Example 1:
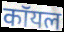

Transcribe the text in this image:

कॉयल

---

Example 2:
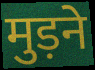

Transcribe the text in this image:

मुड़ने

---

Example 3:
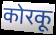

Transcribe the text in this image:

कोरकू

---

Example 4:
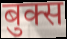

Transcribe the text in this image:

बुक्स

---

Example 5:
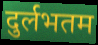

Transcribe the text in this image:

दुर्लभतम